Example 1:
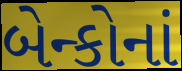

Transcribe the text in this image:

બેન્કોનાં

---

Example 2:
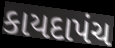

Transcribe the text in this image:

કાયદાપંચ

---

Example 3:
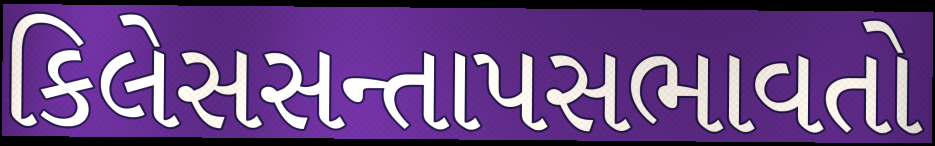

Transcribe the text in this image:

કિલેસસન્તાપસભાવતો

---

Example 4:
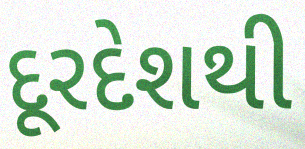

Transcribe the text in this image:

દૂરદેશથી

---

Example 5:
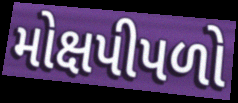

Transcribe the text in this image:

મોક્ષપીપળો